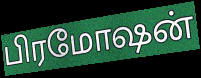
பிரமோஷன்